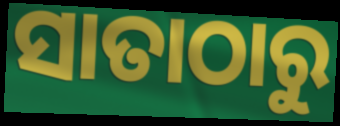
ସାତାଠାରୁ